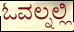
ಓವಲ್ನಲ್ಲಿ